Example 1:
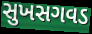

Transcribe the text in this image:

સુખસગવડ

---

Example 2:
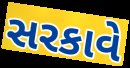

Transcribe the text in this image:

સરકાવે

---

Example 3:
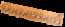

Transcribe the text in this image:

એમઆરઆઈ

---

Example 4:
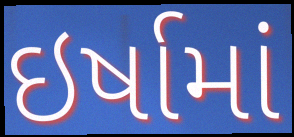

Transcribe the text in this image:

ઇર્ષામાં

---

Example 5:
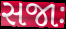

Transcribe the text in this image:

સજાઃ